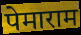
पेमाराम